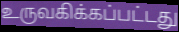
உருவகிக்கப்பட்டது